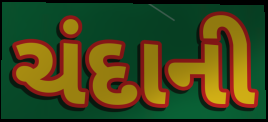
ચંદાની